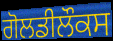
ਗੋਲਡੀਲੌਕਸ